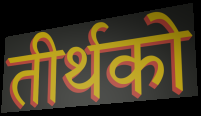
तीर्थको